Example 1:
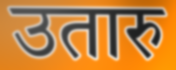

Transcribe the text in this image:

उतारु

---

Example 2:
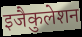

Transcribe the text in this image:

इजैकुलेशन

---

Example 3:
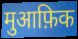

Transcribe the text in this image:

मुआफ़िक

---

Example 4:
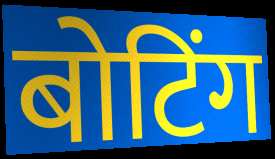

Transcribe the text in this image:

बोटिंग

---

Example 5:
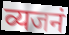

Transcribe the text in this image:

व्यजनं